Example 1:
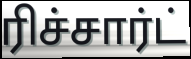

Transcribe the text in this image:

ரிச்சார்ட்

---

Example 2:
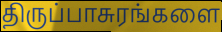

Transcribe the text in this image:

திருப்பாசுரங்களை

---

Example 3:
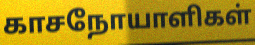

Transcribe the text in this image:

காசநோயாளிகள்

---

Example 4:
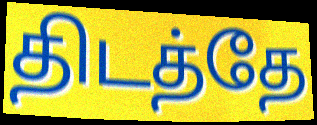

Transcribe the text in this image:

திடத்தே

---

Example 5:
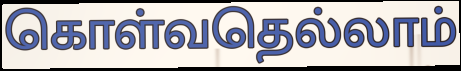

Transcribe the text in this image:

கொள்வதெல்லாம்